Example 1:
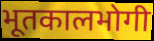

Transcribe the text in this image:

भूतकालभोगी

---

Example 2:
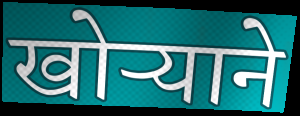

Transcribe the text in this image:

खोऱ्याने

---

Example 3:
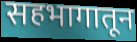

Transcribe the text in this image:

सहभागातून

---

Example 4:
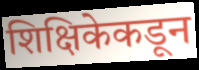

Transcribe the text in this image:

शिक्षिकेकडून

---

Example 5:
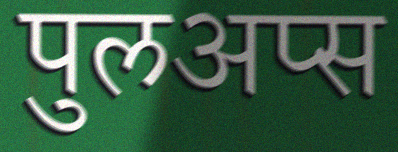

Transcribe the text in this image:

पुलअप्स